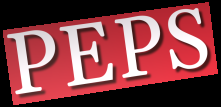
PEPS